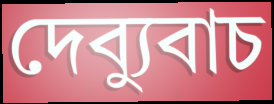
দেব্যুবাচ